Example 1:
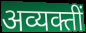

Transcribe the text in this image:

अव्यक्तीं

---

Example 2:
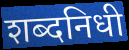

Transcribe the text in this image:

शब्दनिधी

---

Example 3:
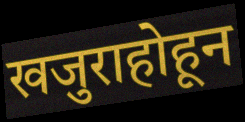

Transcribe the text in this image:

खजुराहोहून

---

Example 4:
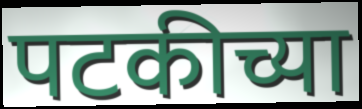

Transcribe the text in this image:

पटकीच्या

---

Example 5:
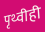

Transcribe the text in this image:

पृथ्वीही